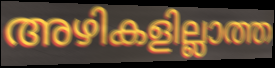
അഴികളില്ലാത്ത